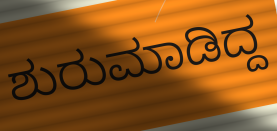
ಶುರುಮಾಡಿದ್ದ